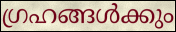
ഗ്രഹങ്ങൾക്കും